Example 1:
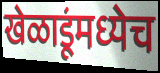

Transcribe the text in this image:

खेळाडूंमध्येच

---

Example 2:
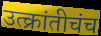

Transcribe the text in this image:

उत्क्रांतीचंच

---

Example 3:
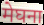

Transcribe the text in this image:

मेघना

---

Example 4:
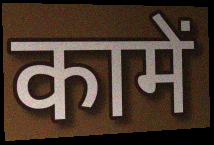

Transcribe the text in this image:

कामें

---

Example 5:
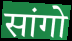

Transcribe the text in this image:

सांगो